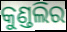
କୁଣ୍ଡଲିର